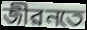
জীৱনতে